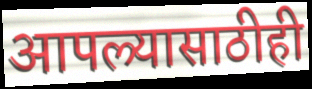
आपल्यासाठीही